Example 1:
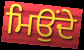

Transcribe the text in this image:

ਮਿਉਂਦੇ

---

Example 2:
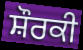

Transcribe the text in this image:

ਸ਼ੌਰਕੀ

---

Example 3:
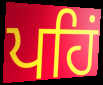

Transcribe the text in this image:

ਪਹਿਂ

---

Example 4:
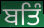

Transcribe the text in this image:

ਬਤਿੰ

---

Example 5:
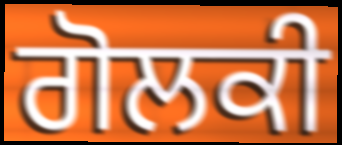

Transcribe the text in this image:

ਗੋਲਕੀ